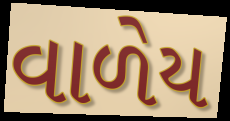
વાળેય